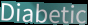
Diabetic